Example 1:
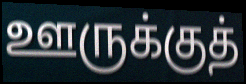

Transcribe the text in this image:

ஊருக்குத்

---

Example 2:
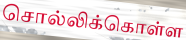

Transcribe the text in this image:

சொல்லிக்கொள்ள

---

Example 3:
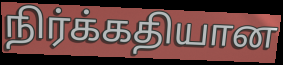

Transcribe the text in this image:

நிர்க்கதியான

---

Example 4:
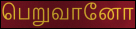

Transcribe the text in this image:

பெறுவானோ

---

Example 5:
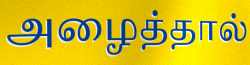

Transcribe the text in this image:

அழைத்தால்